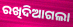
ରଖିଦିଆଗଲା